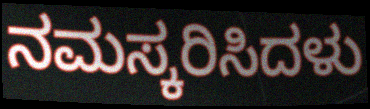
ನಮಸ್ಕರಿಸಿದಳು